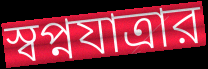
স্বপ্নযাত্রার